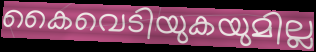
കൈവെടിയുകയുമില്ല